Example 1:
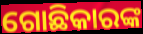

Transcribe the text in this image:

ଗୋଛିକାରଙ୍କ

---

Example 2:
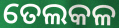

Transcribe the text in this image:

ତେଲକଳ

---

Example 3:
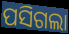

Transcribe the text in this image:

ପସିଗଲା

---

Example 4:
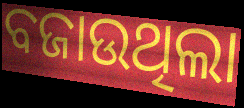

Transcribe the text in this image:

ବଜାଉଥିଲା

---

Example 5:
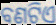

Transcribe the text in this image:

ବଣଟିଏ